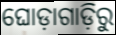
ଘୋଡ଼ାଗାଡ଼ିରୁ